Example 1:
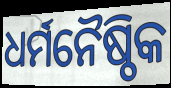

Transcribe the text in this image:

ଧର୍ମନୈଷ୍ଠିକ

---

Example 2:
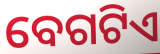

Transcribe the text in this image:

ବେଗଟିଏ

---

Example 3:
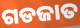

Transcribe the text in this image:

ଗଡଜାତ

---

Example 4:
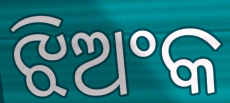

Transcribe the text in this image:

ଝିଅଂକ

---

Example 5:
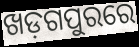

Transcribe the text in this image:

ଖଡ଼ଗପୁରରେ